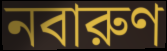
নবারুণ